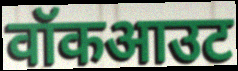
वॉकआउट